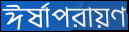
ঈর্ষাপরায়ণ